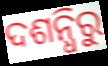
ଦଶନ୍ଧିରୁ